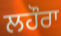
ਲਹੌਰਾ